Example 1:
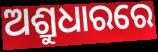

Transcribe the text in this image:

ଅଶ୍ରୁଧାରରେ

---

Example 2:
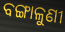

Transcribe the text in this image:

ବଙ୍ଗାଳୁଣୀ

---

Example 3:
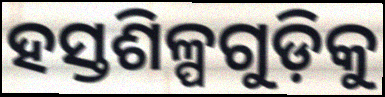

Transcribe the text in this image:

ହସ୍ତଶିଳ୍ପଗୁଡ଼ିକୁ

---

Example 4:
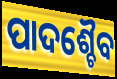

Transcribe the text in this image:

ପାଦଶ୍ଚୈବ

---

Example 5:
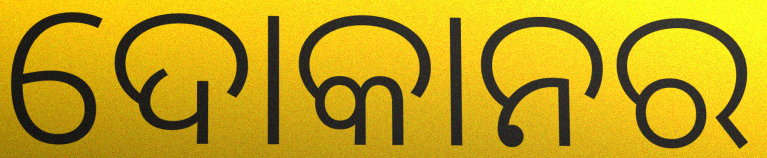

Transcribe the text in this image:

ଦୋକାନର